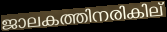
ജാലകത്തിനരികില്